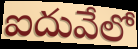
ఐదువేలో